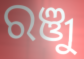
ରଞ୍ଜୁ